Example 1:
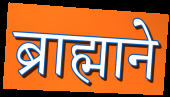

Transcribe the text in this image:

ब्राह्माने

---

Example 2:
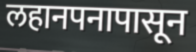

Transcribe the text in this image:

लहानपनापासून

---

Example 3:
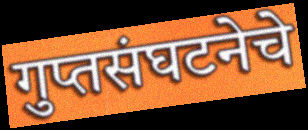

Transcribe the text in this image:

गुप्तसंघटनेचे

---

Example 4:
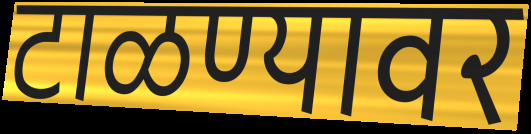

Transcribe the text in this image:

टाळण्यावर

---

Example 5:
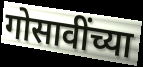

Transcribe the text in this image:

गोसावींच्या